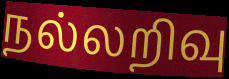
நல்லறிவு